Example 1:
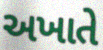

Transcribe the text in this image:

અખાતે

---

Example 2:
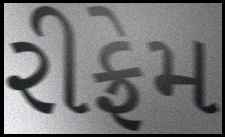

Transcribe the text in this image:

રીફ્રેમ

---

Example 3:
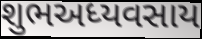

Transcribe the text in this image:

શુભઅધ્યવસાય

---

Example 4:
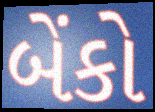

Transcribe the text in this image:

બેંકો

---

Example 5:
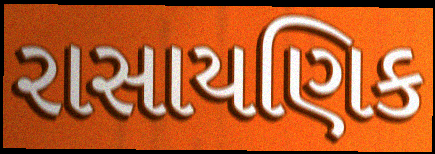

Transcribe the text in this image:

રાસાયણિક